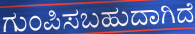
ಗುಂಪಿಸಬಹುದಾಗಿದೆ